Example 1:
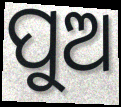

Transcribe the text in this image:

ପୁଅ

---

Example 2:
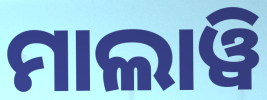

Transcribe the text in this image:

ମାଲାୱି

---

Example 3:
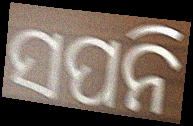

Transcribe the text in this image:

ସପନି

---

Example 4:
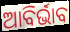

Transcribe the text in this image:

ଆବିର୍ଭାବ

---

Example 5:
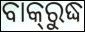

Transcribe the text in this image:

ବାକ୍‌ରୁଦ୍ଧ